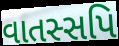
વાતસ્સપિ